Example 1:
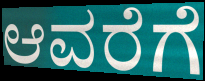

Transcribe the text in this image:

ಆವರೆಗೆ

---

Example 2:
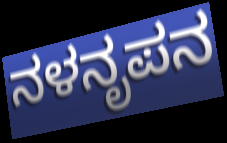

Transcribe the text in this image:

ನಳನೃಪನ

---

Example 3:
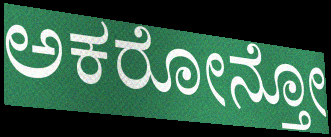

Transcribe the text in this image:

ಅಕರೋನ್ತೋ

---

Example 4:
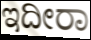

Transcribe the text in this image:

ಇದೀರಾ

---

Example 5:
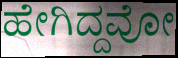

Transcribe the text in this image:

ಹೇಗಿದ್ದವೋ